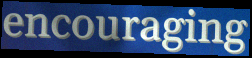
encouraging